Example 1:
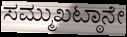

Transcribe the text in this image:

ಸಮ್ಮುಖಟ್ಠಾನೇ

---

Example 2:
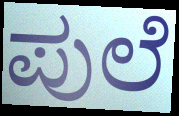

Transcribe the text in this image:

ಪುಲೆ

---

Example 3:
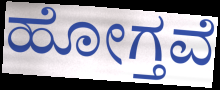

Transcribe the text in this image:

ಹೋಗ್ತವೆ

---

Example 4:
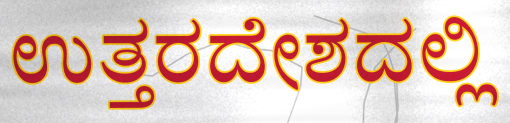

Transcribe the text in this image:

ಉತ್ತರದೇಶದಲ್ಲಿ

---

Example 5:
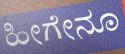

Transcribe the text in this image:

ಹೀಗೇನೂ